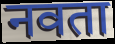
नवता